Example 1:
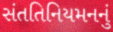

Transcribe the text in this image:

સંતતિનિયમનનું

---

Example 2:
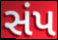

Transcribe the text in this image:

સંપ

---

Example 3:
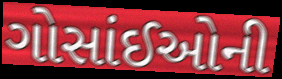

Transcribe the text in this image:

ગોસાંઈઓની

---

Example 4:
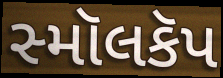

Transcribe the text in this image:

સ્મૉલકૅપ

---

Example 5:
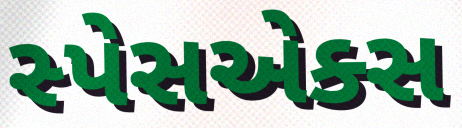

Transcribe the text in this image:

સ્પેસએક્સ